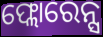
ଫ୍ଲୋରେନ୍ସ